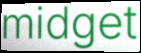
midget